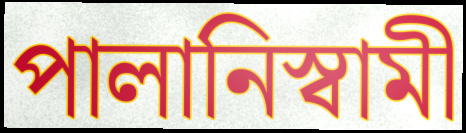
পালানিস্বামী